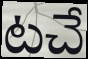
టచే